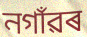
নগাঁৱৰ